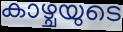
കാഴ്ചയുടെ